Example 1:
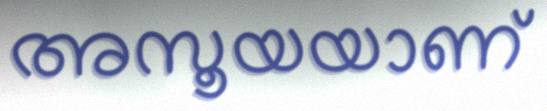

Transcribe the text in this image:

അസൂയയാണ്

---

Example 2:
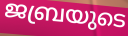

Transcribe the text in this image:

ജബ്രയുടെ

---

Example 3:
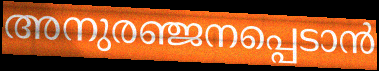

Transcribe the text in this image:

അനുരഞ്ജനപ്പെടാൻ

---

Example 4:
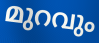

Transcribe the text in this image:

മുറവും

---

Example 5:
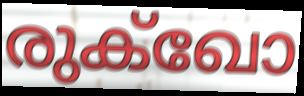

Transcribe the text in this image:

രുക്ഖോ